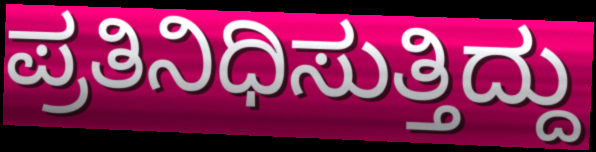
ಪ್ರತಿನಿಧಿಸುತ್ತಿದ್ದು